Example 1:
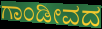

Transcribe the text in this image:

ಗಾಂಡೀವದ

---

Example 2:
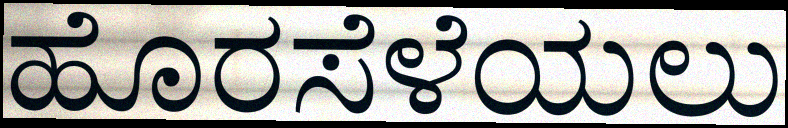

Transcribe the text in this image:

ಹೊರಸೆಳೆಯಲು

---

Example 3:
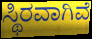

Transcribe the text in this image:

ಸ್ಥಿರವಾಗಿವೆ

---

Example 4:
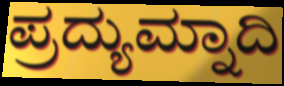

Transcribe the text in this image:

ಪ್ರದ್ಯುಮ್ನಾದಿ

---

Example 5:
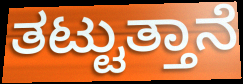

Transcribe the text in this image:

ತಟ್ಟುತ್ತಾನೆ